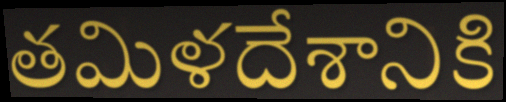
తమిళదేశానికి